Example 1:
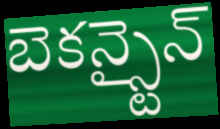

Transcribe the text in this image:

బెకన్స్టైన్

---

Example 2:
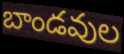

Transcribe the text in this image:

బాండవుల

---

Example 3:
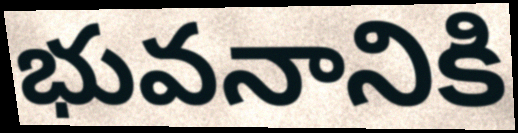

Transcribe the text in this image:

భువనానికి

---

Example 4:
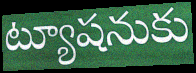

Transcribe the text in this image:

ట్యూషనుకు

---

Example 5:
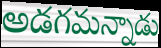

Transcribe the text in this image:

అడగమన్నాడు